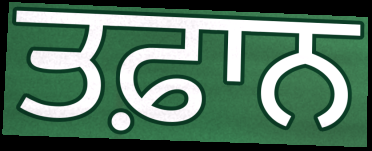
ਤਫ਼ਾਨ